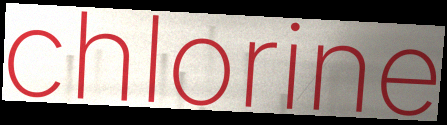
chlorine